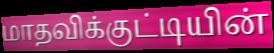
மாதவிக்குட்டியின்